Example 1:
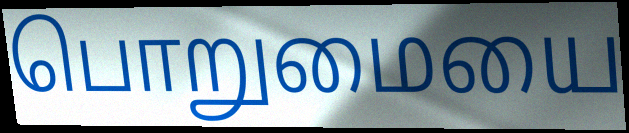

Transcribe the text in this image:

பொறுமையை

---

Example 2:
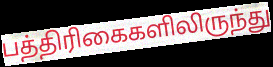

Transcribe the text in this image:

பத்திரிகைகளிலிருந்து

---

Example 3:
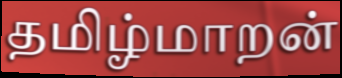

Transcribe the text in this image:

தமிழ்மாறன்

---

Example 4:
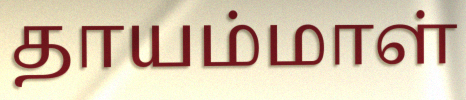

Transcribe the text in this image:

தாயம்மாள்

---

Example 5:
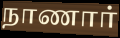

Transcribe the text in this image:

நாணார்